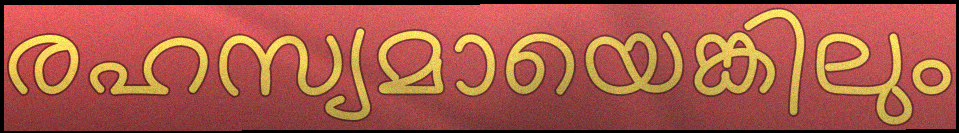
രഹസ്യമായെങ്കിലും